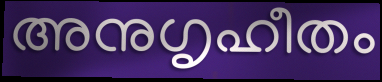
അനുഗൃഹീതം